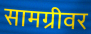
सामग्रीवर